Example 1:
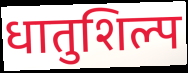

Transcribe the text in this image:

धातुशिल्प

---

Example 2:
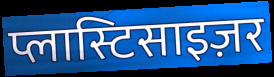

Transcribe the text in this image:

प्लास्टिसाइज़र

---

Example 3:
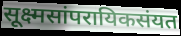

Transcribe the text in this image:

सूक्ष्मसांपरायिकसंयत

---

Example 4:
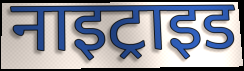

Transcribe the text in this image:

नाइट्राइड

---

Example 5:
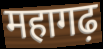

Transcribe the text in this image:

महागढ़